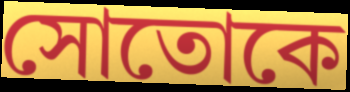
সোতোকে